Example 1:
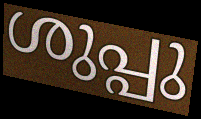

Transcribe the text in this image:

ശുപ്പു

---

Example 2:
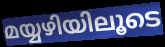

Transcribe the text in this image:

മയ്യഴിയിലൂടെ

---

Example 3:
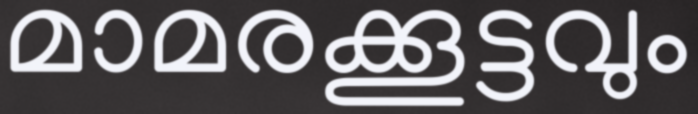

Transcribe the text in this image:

മാമരക്കൂട്ടവും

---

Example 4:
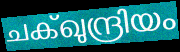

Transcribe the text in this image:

ചക്ഖുന്ദ്രിയം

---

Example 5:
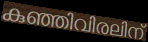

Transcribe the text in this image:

കുഞ്ഞിവിരലിന്